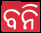
ବନି